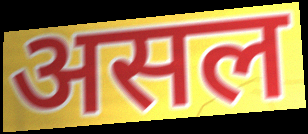
असल